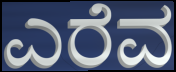
ಎರೆವ